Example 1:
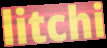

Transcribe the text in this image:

litchi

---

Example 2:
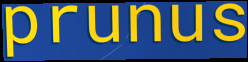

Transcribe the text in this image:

prunus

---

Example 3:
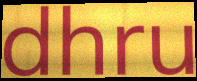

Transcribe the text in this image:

dhru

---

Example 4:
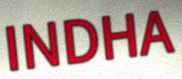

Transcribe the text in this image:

INDHA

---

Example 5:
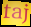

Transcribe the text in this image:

taj